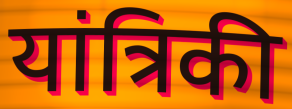
यांत्रिकी